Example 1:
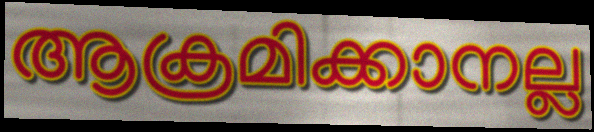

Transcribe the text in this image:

ആക്രമിക്കാനല്ല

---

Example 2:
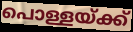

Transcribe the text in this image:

പൊള്ളയ്ക്ക്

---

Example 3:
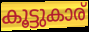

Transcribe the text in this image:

കൂട്ടുകാര്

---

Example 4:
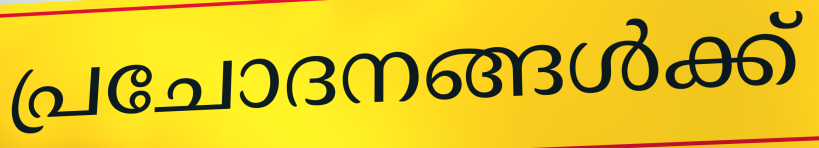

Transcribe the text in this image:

പ്രചോദനങ്ങൾക്ക്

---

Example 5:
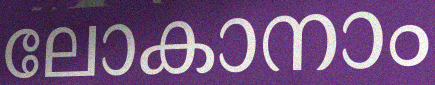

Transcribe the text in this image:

ലോകാനാം